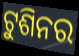
ଟୁଶିନର